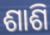
ଶାଶି